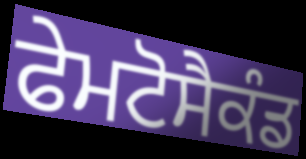
ਫੇਮਟੋਸੈਕੰਡ